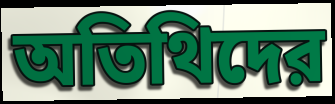
অতিথিদের